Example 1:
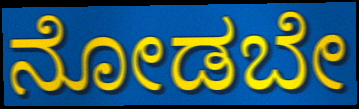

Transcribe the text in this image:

ನೋಡಬೇ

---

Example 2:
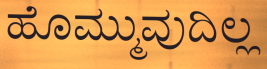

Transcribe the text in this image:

ಹೊಮ್ಮುವುದಿಲ್ಲ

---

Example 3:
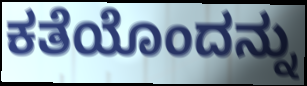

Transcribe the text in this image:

ಕತೆಯೊಂದನ್ನು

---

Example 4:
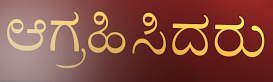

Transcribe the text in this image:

ಆಗ್ರಹಿಸಿದರು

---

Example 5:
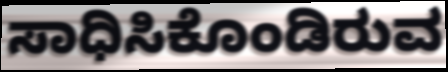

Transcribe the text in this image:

ಸಾಧಿಸಿಕೊಂಡಿರುವ